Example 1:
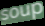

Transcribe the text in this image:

soup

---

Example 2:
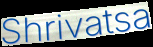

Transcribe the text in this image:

Shrivatsa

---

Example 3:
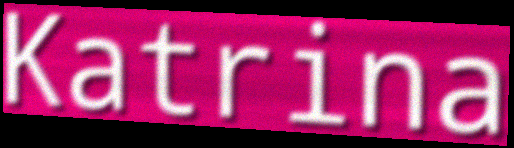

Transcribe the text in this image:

Katrina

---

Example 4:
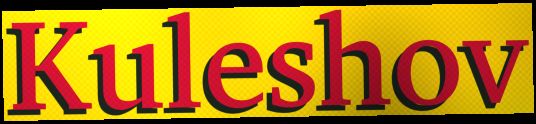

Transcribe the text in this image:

Kuleshov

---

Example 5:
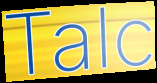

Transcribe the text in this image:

Talc